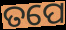
ତପେ